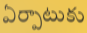
ఏర్పాటుకు